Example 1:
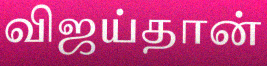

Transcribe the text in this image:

விஜய்தான்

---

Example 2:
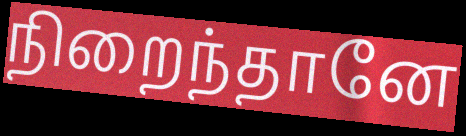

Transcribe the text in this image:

நிறைந்தானே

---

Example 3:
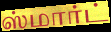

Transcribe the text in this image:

ஸ்மார்ட்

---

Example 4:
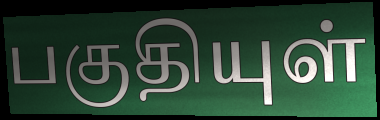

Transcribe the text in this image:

பகுதியுள்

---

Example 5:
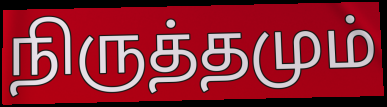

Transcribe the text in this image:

நிருத்தமும்